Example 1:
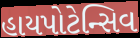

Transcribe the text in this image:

હાયપોટેન્સિવ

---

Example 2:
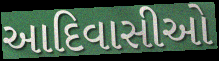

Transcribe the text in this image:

આદિવાસીઓ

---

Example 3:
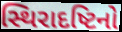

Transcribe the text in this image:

સ્થિરાદષ્ટિનો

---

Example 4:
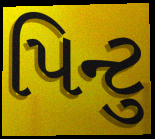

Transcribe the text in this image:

પિન્ટુ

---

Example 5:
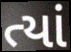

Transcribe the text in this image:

ત્યાં